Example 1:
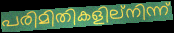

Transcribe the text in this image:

പരിമിതികളില്നിന്ന്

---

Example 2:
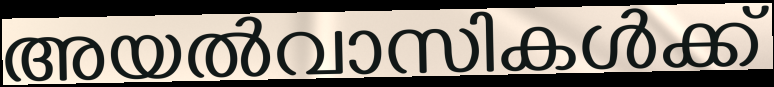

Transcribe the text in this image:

അയൽവാസികൾക്ക്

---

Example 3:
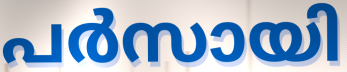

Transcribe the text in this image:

പർസായി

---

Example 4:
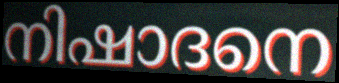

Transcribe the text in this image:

നിഷാദനെ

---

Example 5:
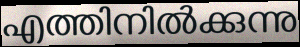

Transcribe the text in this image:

എത്തിനിൽക്കുന്നു